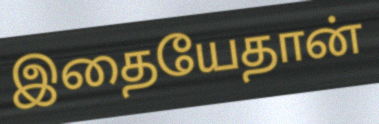
இதையேதான்